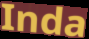
Inda